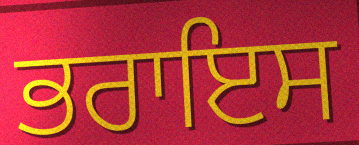
ਭਰਾਇਸ